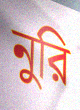
নুরি